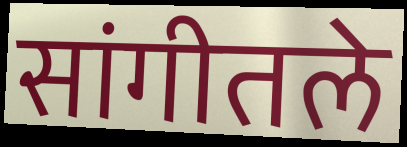
सांगीतले